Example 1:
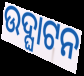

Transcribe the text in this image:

ଉଦ୍ଘାଟନ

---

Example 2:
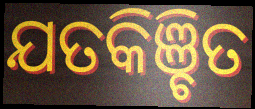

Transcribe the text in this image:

ଯତକିଞ୍ଚିତ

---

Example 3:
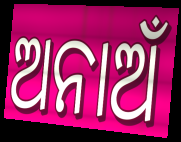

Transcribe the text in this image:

ଅନାଅଁ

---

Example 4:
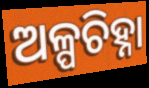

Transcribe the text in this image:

ଅଳ୍ପଚିହ୍ନା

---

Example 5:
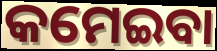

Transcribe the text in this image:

କମେଇବା